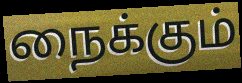
நைக்கும்